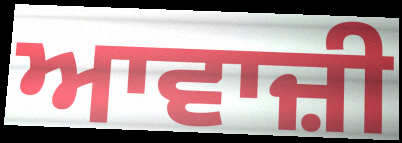
ਆਵਾਜ਼ੀ